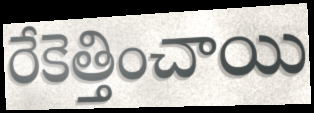
రేకెత్తించాయి